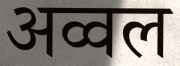
अव्वल